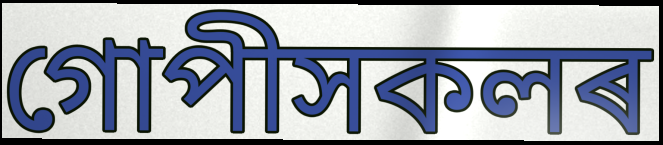
গোপীসকলৰ